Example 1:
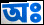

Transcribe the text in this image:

অঃ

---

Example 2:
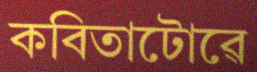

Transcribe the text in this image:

কবিতাটোৱে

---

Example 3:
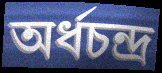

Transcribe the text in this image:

অৰ্ধচন্দ্ৰ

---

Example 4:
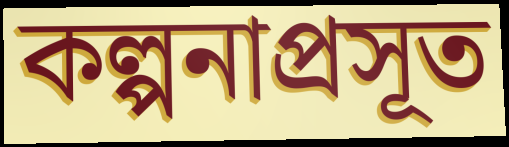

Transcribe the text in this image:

কল্পনাপ্ৰসূত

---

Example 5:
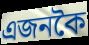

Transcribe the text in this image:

এজনকৈ